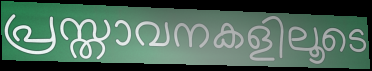
പ്രസ്താവനകളിലൂടെ